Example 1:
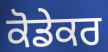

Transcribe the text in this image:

ਕੋਡੇਕਰ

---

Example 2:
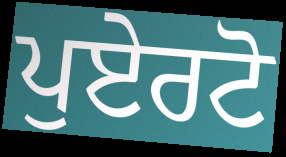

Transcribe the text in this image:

ਪੁਏਰਟੋ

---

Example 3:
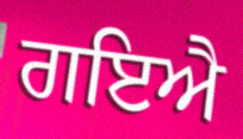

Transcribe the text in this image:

ਗਇਐ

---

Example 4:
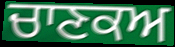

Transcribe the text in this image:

ਚਾਣਕਅ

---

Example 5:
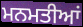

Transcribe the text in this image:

ਮਨਮਤੀਆਂ